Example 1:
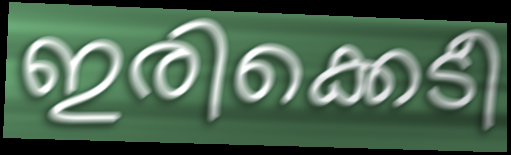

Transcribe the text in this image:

ഇരിക്കെടീ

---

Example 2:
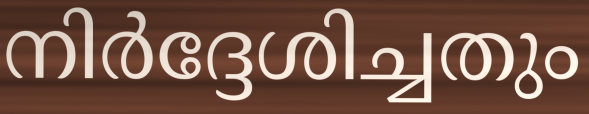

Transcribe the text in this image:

നിർദ്ദേശിച്ചതും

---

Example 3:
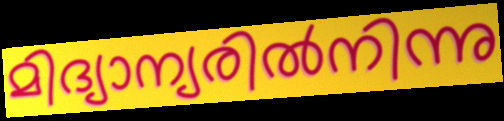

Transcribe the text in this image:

മിദ്യാന്യരിൽനിന്നു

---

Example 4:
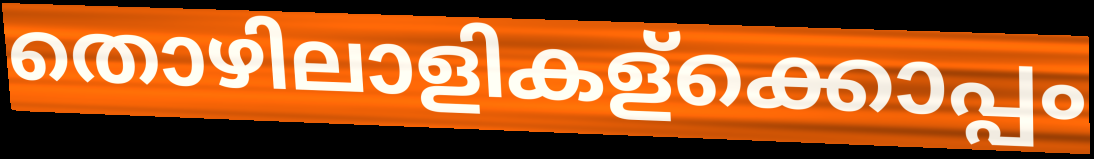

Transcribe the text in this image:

തൊഴിലാളികള്ക്കൊപ്പം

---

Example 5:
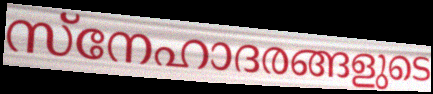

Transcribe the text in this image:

സ്നേഹാദരങ്ങളുടെ